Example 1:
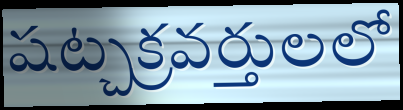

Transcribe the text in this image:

షట్చక్రవర్తులలో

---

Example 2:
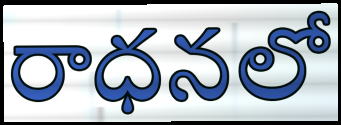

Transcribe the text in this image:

రాధనలో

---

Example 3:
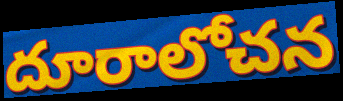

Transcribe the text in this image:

దూరాలోచన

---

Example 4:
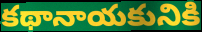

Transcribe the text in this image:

కథానాయకునికి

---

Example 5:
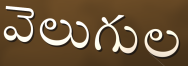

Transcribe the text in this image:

వెలుగుల